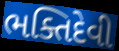
ભક્તિદેવી